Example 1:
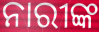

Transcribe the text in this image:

ନାରୀଙ୍କ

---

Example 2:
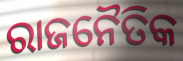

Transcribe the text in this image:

ରାଜନୈତିକ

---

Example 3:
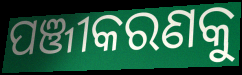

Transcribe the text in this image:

ପଞ୍ଜୀକରଣକୁ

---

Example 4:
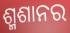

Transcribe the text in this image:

ଶ୍ମଶାନର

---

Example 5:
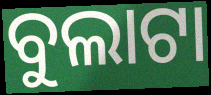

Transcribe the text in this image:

ବୁଲାଟା